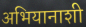
अभियानाशी